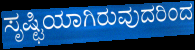
ಸೃಷ್ಟಿಯಾಗಿರುವುದರಿಂದ